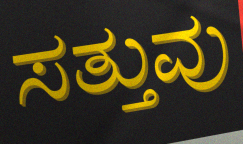
ಸತ್ತುವು